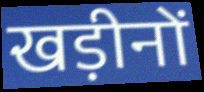
खड़ीनों